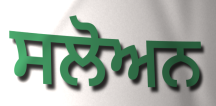
ਸਲੋਅਨ